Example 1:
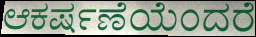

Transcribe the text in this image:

ಆಕರ್ಷಣೆಯೆಂದರೆ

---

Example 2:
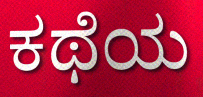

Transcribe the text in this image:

ಕಥೆಯ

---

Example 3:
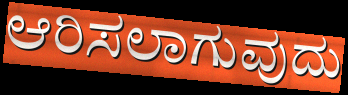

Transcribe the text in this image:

ಆರಿಸಲಾಗುವುದು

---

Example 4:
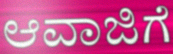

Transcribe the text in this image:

ಆವಾಜಿಗೆ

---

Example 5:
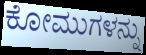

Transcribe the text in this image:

ಕೋಮುಗಳನ್ನು